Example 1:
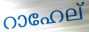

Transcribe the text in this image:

റാഹേല്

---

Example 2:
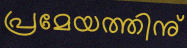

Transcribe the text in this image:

പ്രമേയത്തിനു്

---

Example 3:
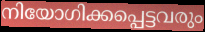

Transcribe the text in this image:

നിയോഗിക്കപ്പെട്ടവരും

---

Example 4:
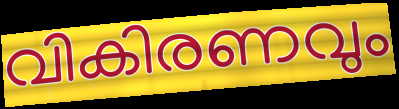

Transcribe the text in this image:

വികിരണവും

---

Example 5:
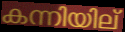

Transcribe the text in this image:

കന്നിയില്